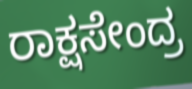
ರಾಕ್ಷಸೇಂದ್ರ